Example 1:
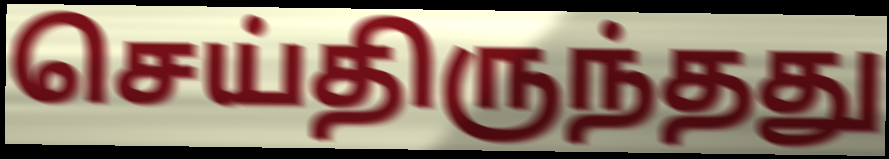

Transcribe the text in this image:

செய்திருந்தது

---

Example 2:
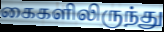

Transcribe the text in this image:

கைகளிலிருந்து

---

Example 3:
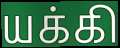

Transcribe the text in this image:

யக்கி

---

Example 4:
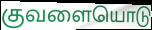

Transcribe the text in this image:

குவளையொடு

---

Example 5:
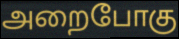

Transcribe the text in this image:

அறைபோகு